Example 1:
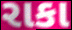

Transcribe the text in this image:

રાકા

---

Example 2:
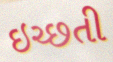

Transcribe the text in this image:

ઇચ્છતી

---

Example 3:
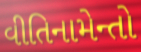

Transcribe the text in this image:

વીતિનામેન્તો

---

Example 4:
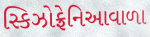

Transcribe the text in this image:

સ્કિઝોફ્રેનિઆવાળા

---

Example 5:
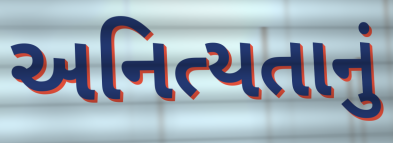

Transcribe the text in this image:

અનિત્યતાનું